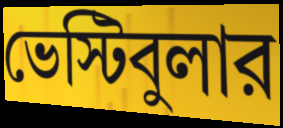
ভেস্টিবুলার